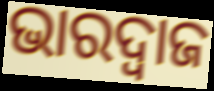
ଭାରଦ୍ୱାଜ